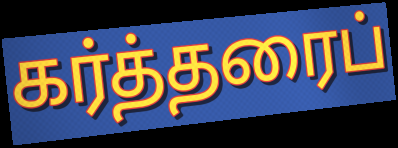
கர்த்தரைப்